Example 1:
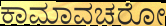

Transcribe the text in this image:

ಕಾಮಾವಚರೋ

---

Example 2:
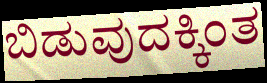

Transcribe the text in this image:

ಬಿಡುವುದಕ್ಕಿಂತ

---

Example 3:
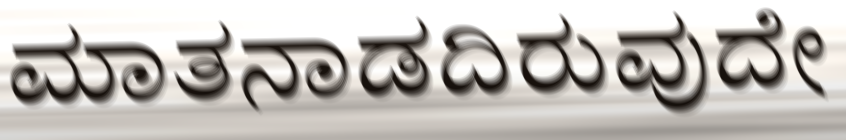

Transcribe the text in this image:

ಮಾತನಾಡದಿರುವುದೇ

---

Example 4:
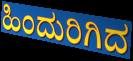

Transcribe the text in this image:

ಹಿಂದುರಿಗಿದ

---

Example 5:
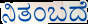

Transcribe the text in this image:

ನಿತಂಬದೆ